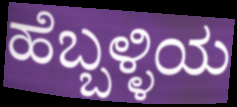
ಹೆಬ್ಬಳ್ಳಿಯ